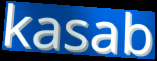
kasab